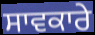
ਸਾਵਕਾਰੇ